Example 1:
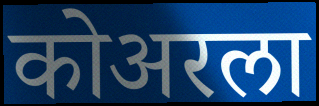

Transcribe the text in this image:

कोअरला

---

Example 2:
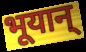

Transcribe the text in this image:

भूयान्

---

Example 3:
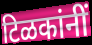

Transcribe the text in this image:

टिळकांनीं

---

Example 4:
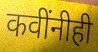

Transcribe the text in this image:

कवींनीही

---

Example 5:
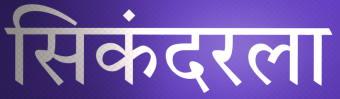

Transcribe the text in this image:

सिकंदरला